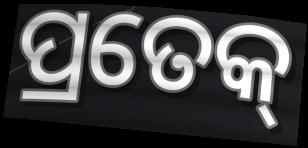
ପ୍ରତେକ୍